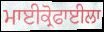
ਮਾਈਕ੍ਰੋਫਾਈਲਾ